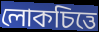
লোকচিত্তে